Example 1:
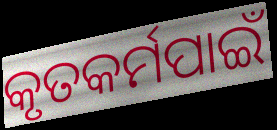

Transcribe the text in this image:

କୃତକର୍ମପାଇଁ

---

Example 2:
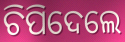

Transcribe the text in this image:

ଚିପିଦେଲେ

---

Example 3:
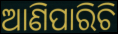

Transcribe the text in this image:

ଆଣିପାରିଚି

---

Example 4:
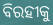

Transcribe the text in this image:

ବିରହୀକୁ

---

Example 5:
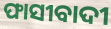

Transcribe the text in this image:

ଫାସୀବାଦୀ